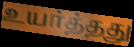
உயர்த்தது